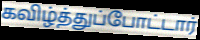
கவிழ்த்துப்போட்டார்